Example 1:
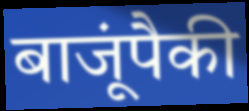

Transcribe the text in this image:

बाजूंपैकी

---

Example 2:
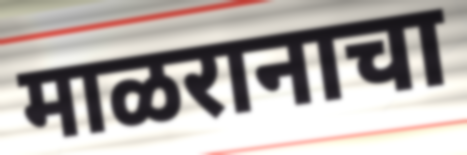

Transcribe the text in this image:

माळरानाचा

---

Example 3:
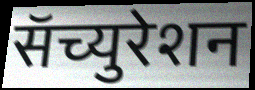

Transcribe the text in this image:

सॅच्युरेशन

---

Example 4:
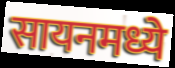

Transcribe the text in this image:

सायनमध्ये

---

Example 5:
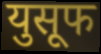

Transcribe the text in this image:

युसूफ